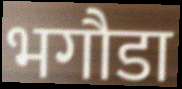
भगौडा